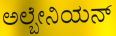
ಅಲ್ಬೇನಿಯನ್